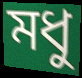
মধু